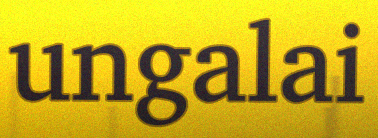
ungalai